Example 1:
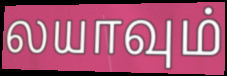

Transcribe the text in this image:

லயாவும்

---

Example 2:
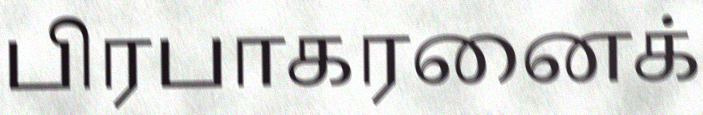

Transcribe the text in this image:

பிரபாகரனைக்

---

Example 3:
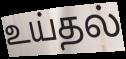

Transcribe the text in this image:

உய்தல்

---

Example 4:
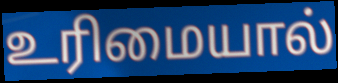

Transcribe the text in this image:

உரிமையால்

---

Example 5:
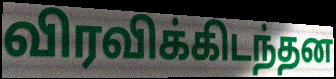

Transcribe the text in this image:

விரவிக்கிடந்தன